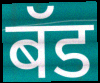
बॅड